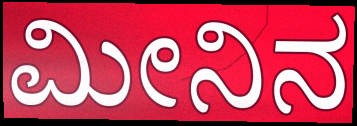
ಮೀನಿನ